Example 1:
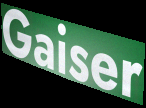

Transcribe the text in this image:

Gaiser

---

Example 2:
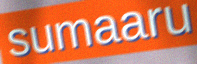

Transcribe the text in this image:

sumaaru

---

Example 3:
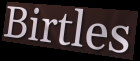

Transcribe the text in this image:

Birtles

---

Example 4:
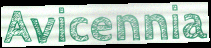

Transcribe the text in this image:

Avicennia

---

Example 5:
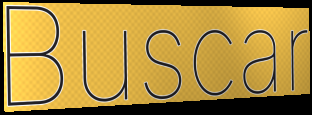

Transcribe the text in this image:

Buscar